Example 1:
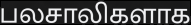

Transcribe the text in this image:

பலசாலிகளாக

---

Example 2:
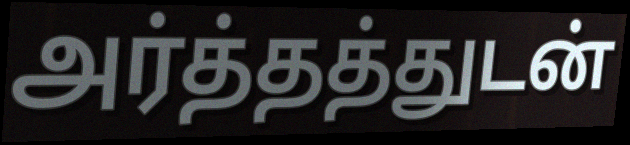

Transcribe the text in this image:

அர்த்தத்துடன்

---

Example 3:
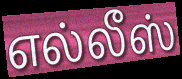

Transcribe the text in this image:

எல்லீஸ்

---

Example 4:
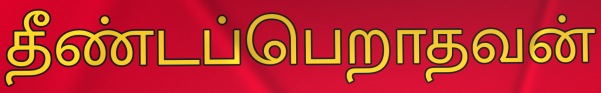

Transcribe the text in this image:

தீண்டப்பெறாதவன்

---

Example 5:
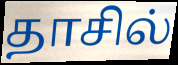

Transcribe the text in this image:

தாசில்